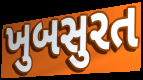
ખુબસુરત